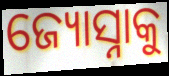
ଜ୍ୟୋସ୍ନାକୁ